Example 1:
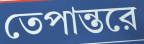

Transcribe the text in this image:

তেপান্তরে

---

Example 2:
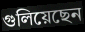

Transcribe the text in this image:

গুলিয়েছেন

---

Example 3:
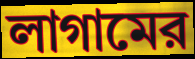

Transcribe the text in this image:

লাগামের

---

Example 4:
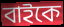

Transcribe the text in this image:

বাইকে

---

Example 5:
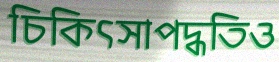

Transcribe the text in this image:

চিকিৎসাপদ্ধতিও